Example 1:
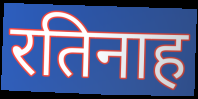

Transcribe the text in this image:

रतिनाह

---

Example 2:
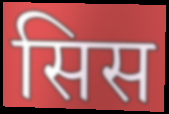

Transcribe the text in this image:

सिस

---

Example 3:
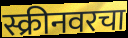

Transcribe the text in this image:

स्क्रीनवरचा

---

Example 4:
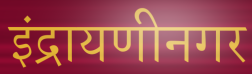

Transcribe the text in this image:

इंद्रायणीनगर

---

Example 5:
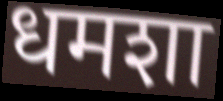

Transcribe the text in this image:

धमशा